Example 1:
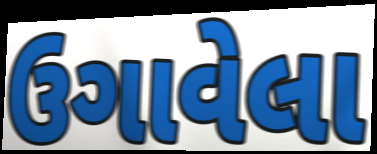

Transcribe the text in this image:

ઉગાવેલા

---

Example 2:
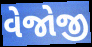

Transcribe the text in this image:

વેજોજી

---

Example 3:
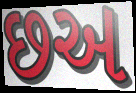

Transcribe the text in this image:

છઅ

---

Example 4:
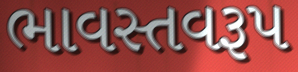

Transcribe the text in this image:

ભાવસ્તવરૂપ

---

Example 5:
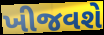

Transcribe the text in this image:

ખીજવશે